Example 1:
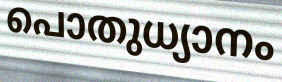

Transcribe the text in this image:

പൊതുധ്യാനം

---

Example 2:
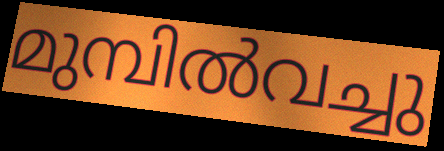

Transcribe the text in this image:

മുമ്പിൽവച്ചു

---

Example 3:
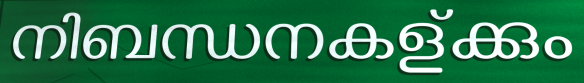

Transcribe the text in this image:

നിബന്ധനകള്ക്കും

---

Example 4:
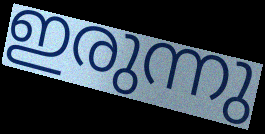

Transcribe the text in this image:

ഇരുന്നു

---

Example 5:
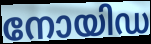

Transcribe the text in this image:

നോയിഡ